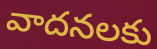
వాదనలకు